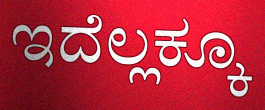
ಇದೆಲ್ಲಕ್ಕೂ